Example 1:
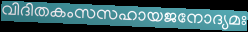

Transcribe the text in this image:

വിദിതകംസസഹായജനോദ്യമഃ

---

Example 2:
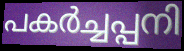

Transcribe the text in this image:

പകർച്ചപ്പനി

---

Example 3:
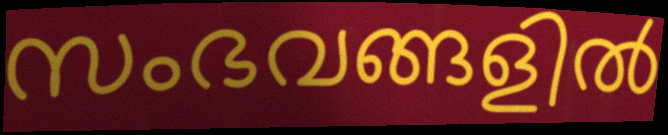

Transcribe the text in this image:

സംഭവങ്ങളിൽ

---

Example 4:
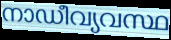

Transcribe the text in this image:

നാഡീവ്യവസ്ഥ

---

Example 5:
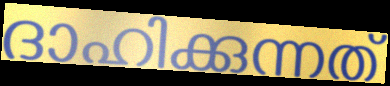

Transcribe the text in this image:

ദാഹിക്കുന്നത്